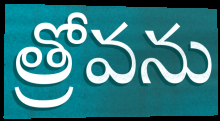
త్రోవను